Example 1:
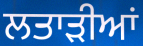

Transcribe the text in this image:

ਲਤਾੜੀਆਂ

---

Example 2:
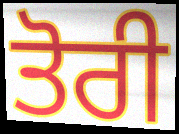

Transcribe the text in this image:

ਤੋਰੀ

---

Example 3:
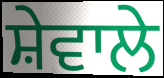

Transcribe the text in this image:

ਸ਼ੇਵਾਲੇ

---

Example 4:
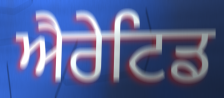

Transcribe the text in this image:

ਐਰੇਟਿਡ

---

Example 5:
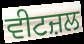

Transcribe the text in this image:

ਵੀਟਜ਼ਲ